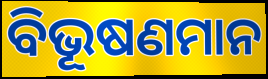
ବିଭୂଷଣମାନ